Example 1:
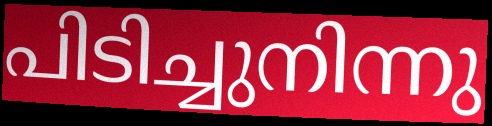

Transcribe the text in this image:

പിടിച്ചുനിന്നു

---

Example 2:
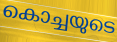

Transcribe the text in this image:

കൊച്ചയുടെ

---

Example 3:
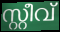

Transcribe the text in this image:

സ്റ്റീവ്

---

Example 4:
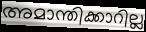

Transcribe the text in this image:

അമാന്തിക്കാറില്ല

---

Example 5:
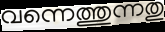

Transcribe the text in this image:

വന്നെത്തുന്നതു